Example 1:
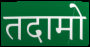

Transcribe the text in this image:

तदामो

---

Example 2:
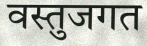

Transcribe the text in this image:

वस्तुजगत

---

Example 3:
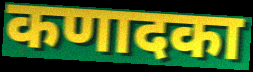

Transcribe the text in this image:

कणादका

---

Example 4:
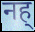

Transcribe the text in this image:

नह्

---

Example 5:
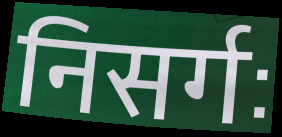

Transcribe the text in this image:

निसर्गः